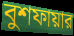
বুশফায়ার